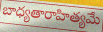
బాధ్యతారాహిత్యమే